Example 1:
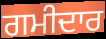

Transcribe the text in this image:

ਗਮੀਦਾਰ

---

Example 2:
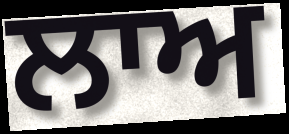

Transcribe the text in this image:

ਲਾਅ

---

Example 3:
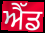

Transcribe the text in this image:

ਐੱਡ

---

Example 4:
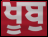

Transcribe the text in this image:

ਖੂਬੁ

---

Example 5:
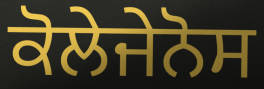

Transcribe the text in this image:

ਕੋਲੇਜੇਨੋਸ